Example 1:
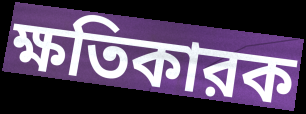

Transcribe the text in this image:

ক্ষতিকারক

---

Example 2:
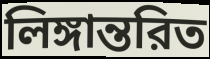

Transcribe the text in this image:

লিঙ্গান্তরিত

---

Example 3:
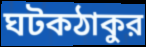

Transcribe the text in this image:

ঘটকঠাকুর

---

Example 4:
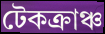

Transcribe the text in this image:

টেকক্রাঞ্চ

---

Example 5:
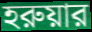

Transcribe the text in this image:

হরুয়ার